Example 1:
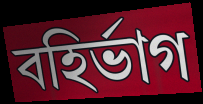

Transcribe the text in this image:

বহির্ভাগ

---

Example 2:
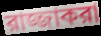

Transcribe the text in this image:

রাজ্জাকরা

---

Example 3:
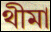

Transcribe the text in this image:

থীমা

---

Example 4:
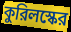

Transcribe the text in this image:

কুরিলস্কের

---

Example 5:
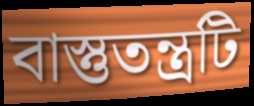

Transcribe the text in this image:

বাস্তুতন্ত্রটি